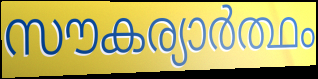
സൗകര്യാർത്ഥം